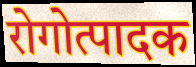
रोगोत्पादक